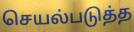
செயல்படுத்த